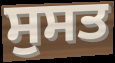
ਸੁਸਤ